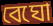
বেঘো